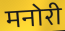
मनोरी